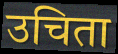
उचिता